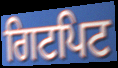
ਗਿਟਪਿਟ